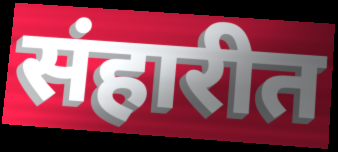
संहारीत